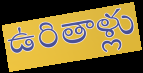
ఉరితాళ్లు